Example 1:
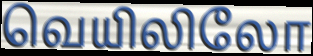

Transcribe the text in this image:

வெயிலிலோ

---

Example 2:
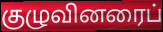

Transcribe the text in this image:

குழுவினரைப்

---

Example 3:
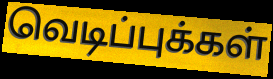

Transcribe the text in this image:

வெடிப்புக்கள்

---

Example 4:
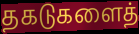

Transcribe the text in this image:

தகடுகளைத்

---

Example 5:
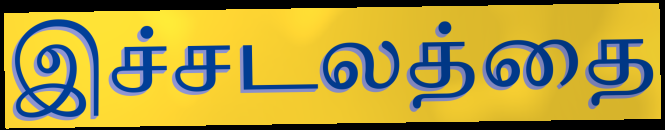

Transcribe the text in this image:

இச்சடலத்தை